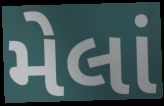
મેલાં